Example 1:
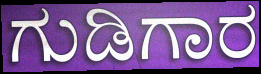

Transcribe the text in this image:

ಗುಡಿಗಾರ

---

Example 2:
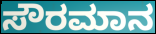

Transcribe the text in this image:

ಸೌರಮಾನ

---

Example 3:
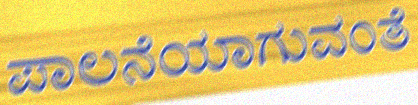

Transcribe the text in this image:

ಪಾಲನೆಯಾಗುವಂತೆ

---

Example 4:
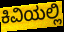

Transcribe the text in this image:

ಕಿವಿಯಲ್ಲಿ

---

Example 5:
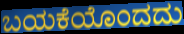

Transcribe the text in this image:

ಬಯಕೆಯೊಂದದು